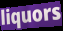
liquors